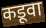
कडूवा